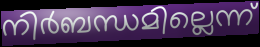
നിർബന്ധമില്ലെന്ന്